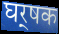
घर्षक